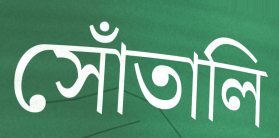
সোঁতালি